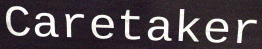
Caretaker